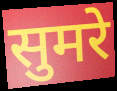
सुमरे